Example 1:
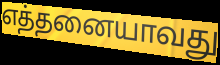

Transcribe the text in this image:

எத்தனையாவது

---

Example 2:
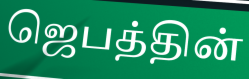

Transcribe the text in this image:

ஜெபத்தின்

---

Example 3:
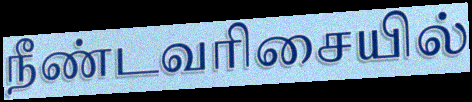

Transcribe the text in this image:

நீண்டவரிசையில்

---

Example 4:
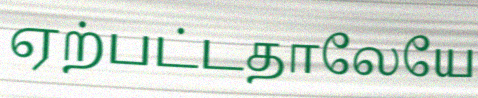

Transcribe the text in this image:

ஏற்பட்டதாலேயே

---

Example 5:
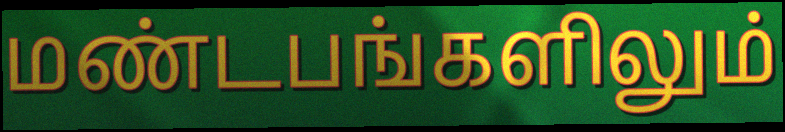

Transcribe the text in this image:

மண்டபங்களிலும்